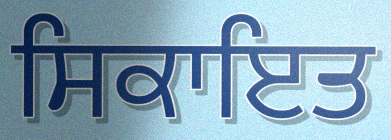
ਸਿਕਾਇਤ